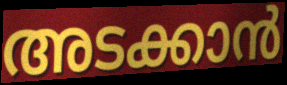
അടക്കാൻ